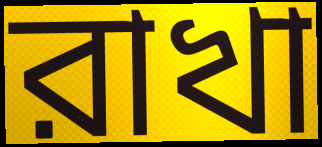
রাখা